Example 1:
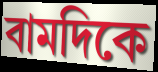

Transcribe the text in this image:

বামদিকে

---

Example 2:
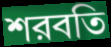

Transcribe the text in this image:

শরবতি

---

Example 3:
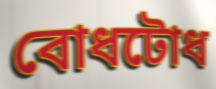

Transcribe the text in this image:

বোধটোধ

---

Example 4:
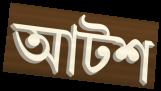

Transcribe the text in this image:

আটশ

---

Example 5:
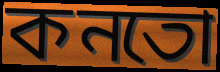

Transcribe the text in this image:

কনতো